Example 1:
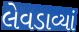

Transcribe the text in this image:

લેવડાવ્યાં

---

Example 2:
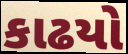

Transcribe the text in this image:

કાઢયો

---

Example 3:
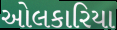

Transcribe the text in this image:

ઓલકારિયા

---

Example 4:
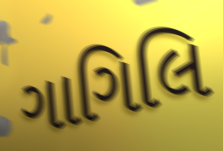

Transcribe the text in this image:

ગાગિલિ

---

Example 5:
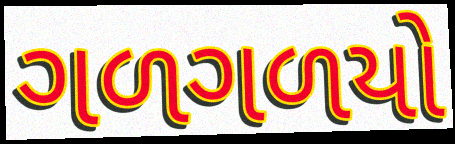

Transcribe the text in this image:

ગળગળયો